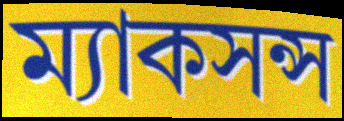
ম্যাকসন্স